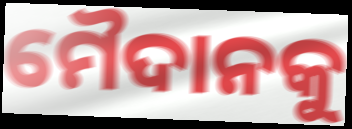
ମୈଦାନକୁ